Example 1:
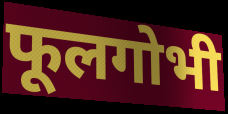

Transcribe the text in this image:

फूलगोभी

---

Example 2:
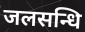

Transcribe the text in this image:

जलसन्धि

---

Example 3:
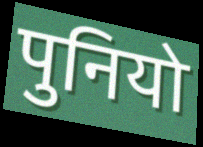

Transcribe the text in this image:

पुनियो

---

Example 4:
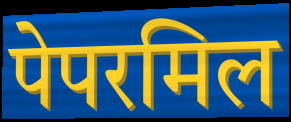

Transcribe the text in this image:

पेपरमिल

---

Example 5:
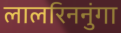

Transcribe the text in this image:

लालरिननुंगा